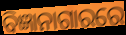
ବିଜ୍ଞାନାଗାରରେ